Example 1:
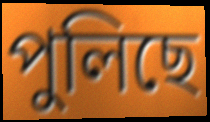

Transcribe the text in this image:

পুলিছে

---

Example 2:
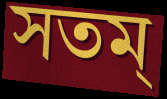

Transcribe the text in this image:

সতম্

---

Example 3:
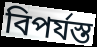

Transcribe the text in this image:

বিপৰ্যস্ত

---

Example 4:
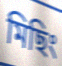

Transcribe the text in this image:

মিছিং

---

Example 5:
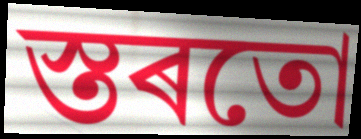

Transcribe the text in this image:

স্তৰতো